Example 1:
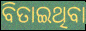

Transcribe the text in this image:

ବିତାଇଥିବା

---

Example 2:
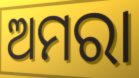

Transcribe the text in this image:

ଅମରା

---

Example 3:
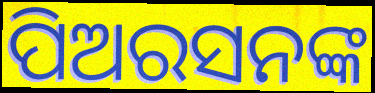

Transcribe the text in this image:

ପିଅରସନଙ୍କ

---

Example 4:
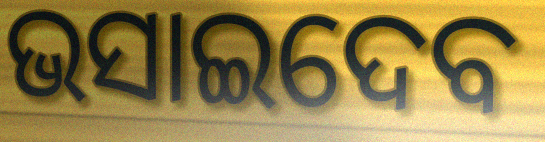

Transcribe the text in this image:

ଭସାଇଦେବ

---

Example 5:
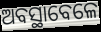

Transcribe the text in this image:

ଅବସ୍ଥାବେଳେ